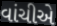
વાંચીએ